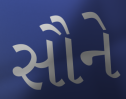
સૌને